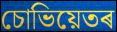
চোভিয়েতৰ